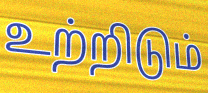
உற்றிடும்